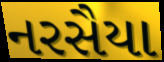
નરસૈયા